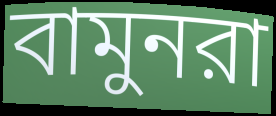
বামুনরা